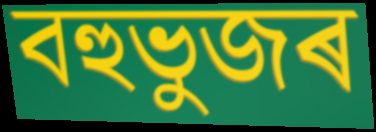
বহুভুজৰ